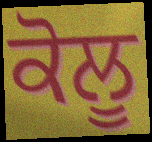
ਕੋਲੂ